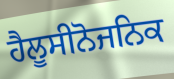
ਹੈਲੂਸੀਨੋਜਨਿਕ